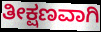
ತೀಕ್ಷಣವಾಗಿ